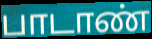
பாடாண்